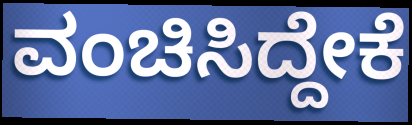
ವಂಚಿಸಿದ್ದೇಕೆ